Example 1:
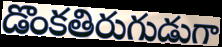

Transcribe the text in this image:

డొంకతిరుగుడుగా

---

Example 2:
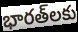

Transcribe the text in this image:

భారత్‌లకు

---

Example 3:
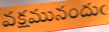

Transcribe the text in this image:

వక్షమునందుఁ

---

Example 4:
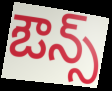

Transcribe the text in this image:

ఔన్స్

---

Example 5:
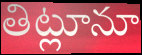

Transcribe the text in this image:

తిట్లూనూ